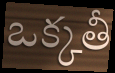
ఒక్కతీ